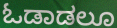
ಓಡಾಡಲೂ